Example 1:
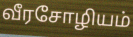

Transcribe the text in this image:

வீரசோழியம்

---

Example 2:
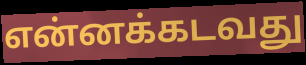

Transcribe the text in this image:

என்னக்கடவது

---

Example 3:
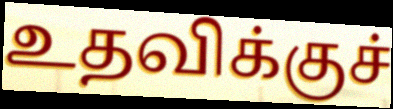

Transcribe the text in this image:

உதவிக்குச்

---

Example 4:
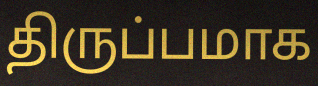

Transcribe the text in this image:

திருப்பமாக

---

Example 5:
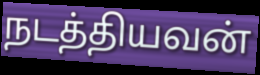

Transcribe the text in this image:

நடத்தியவன்